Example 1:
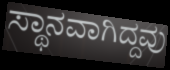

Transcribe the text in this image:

ಸ್ಥಾನವಾಗಿದ್ದವು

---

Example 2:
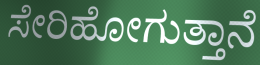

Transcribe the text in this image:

ಸೇರಿಹೋಗುತ್ತಾನೆ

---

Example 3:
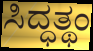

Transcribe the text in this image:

ಸಿದ್ಧತ್ಥಂ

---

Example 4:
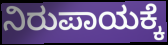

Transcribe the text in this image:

ನಿರುಪಾಯಕ್ಕೆ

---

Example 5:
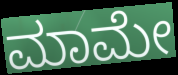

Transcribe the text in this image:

ಮಾಮೇ